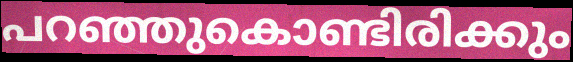
പറഞ്ഞുകൊണ്ടിരിക്കും